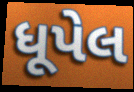
ધૂપેલ